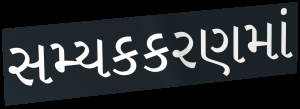
સમ્યકકરણમાં